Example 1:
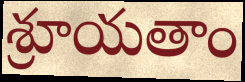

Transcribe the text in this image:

శ్రూయతాం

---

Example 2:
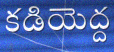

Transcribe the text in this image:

కడియెద్ద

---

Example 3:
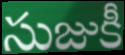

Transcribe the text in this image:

సుజుకీ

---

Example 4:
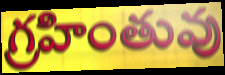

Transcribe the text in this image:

గ్రహింతువు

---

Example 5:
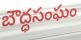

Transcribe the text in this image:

బౌద్ధసంఘం